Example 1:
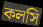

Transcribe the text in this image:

কলসি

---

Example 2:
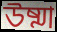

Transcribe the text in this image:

উষ্মা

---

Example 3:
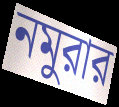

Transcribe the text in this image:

নমুরার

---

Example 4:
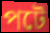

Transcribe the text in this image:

পটে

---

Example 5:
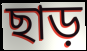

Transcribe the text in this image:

ছাড়